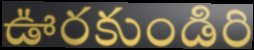
ఊరకుండిరి